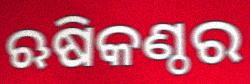
ଋଷିକଣ୍ଠର